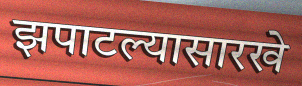
झपाटल्यासारखे